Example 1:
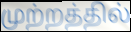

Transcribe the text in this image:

முற்றத்தில்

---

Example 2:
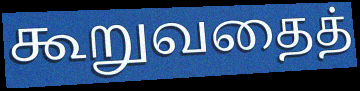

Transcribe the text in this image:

கூறுவதைத்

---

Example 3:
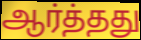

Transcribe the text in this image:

ஆர்த்தது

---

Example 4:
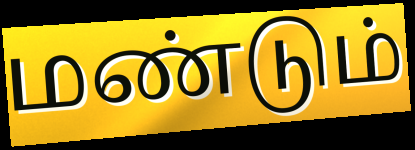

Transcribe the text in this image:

மண்டும்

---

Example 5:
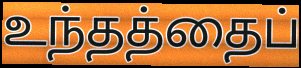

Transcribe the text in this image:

உந்தத்தைப்